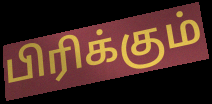
பிரிக்கும்